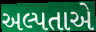
અલ્પતાએ